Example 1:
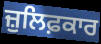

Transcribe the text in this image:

ਜ਼ੁਲਿਫ਼ਕਾਰ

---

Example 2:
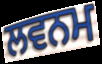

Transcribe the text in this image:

ਲਵਨਮ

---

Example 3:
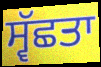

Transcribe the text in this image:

ਸ੍ਵੱਛਤਾ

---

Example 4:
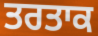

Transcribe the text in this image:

ਤਰਤਾਕ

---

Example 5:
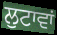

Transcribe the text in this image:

ਲੁਟਾਵਾਂ